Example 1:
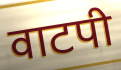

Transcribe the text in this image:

वाटपी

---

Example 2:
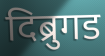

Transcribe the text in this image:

दिब्रुगड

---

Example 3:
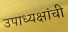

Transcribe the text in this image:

उपाध्यक्षांची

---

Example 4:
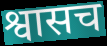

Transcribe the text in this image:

श्वासच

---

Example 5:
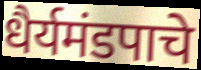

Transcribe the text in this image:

धैर्यमंडपाचे